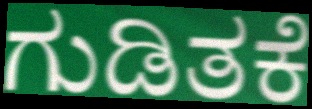
ಗುಡಿತಕೆ